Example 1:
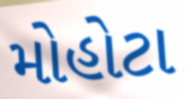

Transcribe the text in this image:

મોહોટા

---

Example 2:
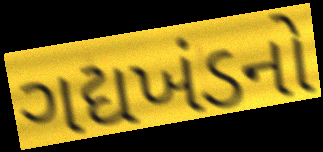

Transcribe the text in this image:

ગદ્યખંડનો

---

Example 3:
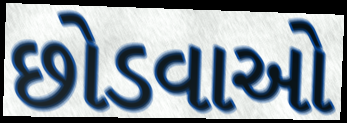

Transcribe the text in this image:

છોડવાઓ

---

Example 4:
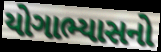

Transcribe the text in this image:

યોગાભ્યાસનો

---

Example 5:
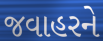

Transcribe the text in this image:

જવાહરને